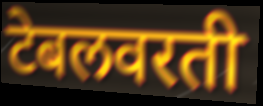
टेबलवरती